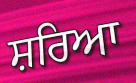
ਸ਼ਰਿਆ